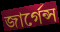
জার্গেন্স